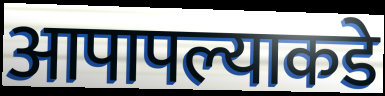
आपापल्याकडे